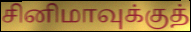
சினிமாவுக்குத்